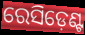
ରେସିଡ଼େଣ୍ଟ